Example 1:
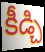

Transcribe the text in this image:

కీడ్చి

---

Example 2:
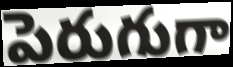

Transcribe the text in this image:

పెరుగుగా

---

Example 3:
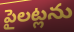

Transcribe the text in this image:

పైలట్లను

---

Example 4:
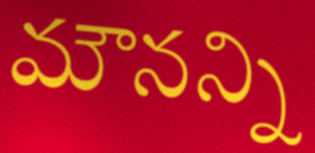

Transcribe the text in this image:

మౌనన్ని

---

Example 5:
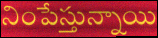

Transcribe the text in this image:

నింపేస్తున్నాయి